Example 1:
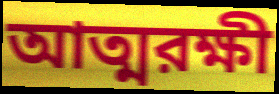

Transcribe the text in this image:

আত্মরক্ষী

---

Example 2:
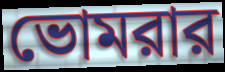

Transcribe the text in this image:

ভোমরার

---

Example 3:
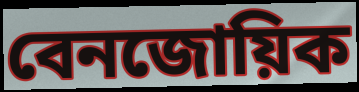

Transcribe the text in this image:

বেনজোয়িক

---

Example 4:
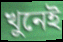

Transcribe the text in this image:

খুনেই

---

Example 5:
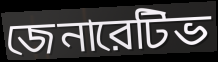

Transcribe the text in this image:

জেনারেটিভ